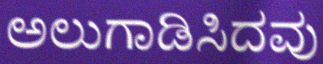
ಅಲುಗಾಡಿಸಿದವು